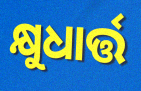
କ୍ଷୁଧାର୍ତ୍ତ